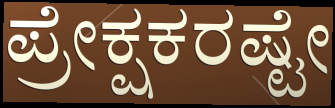
ಪ್ರೇಕ್ಷಕರಷ್ಟೇ